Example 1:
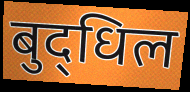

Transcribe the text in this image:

बुद्धिल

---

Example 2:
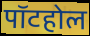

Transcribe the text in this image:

पॉटहोल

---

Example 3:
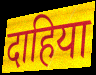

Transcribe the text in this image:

दाहिया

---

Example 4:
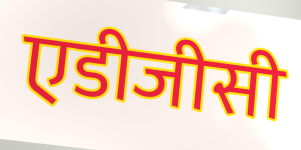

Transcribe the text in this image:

एडीजीसी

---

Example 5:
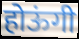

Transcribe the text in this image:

होऊंगी